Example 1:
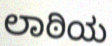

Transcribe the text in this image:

ಲಾಠಿಯ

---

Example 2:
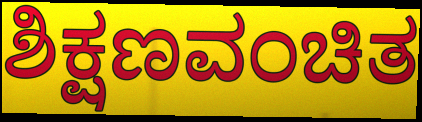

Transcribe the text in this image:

ಶಿಕ್ಷಣವಂಚಿತ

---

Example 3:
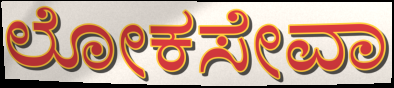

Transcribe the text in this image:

ಲೋಕಸೇವಾ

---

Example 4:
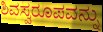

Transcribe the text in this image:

ಶಿವಸ್ವರೂಪವನ್ನು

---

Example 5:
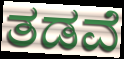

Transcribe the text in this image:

ತಡವೆ